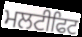
ਮਲਟੀਫਿਟ